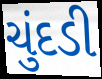
ચુંદડી